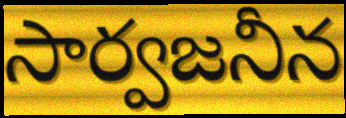
సార్వజనీన